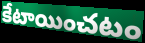
కేటాయించటం